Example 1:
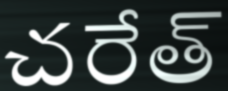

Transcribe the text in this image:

చరేత్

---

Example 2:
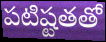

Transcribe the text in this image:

పటిష్టతతో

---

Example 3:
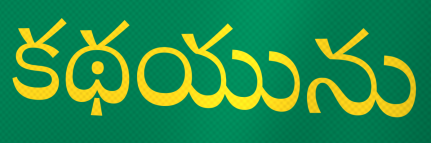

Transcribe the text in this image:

కథయును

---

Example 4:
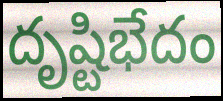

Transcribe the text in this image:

దృష్టిభేదం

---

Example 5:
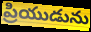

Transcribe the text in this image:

ప్రియుడును